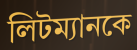
লিটম্যানকে